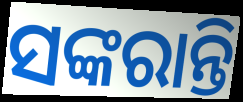
ସଙ୍କରାନ୍ତି